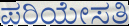
ಪರಿಯೇಸತಿ